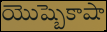
యొష్బెకాషా